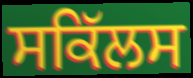
ਸਕਿੱਲਸ